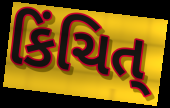
કિંચિત્